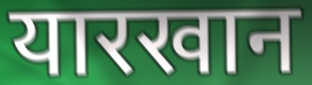
यारखान